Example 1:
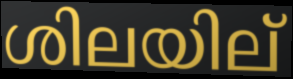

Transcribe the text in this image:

ശിലയില്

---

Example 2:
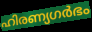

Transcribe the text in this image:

ഹിരണ്യഗർഭം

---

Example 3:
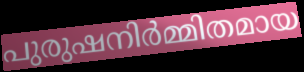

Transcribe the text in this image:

പുരുഷനിർമ്മിതമായ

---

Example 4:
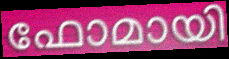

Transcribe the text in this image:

ഫോമായി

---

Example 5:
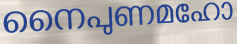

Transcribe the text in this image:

നൈപുണമഹോ